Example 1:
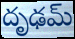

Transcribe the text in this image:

దృఢమ్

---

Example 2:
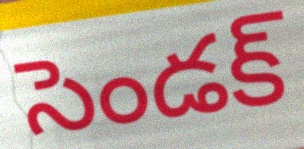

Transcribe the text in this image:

సెండక్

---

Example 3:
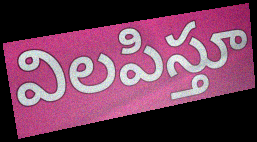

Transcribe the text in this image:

విలపిస్తూ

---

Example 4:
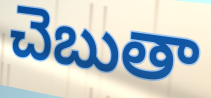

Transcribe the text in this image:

చెబుతా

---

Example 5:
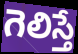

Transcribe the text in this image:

గెలిస్తే